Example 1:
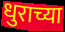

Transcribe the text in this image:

धुराच्या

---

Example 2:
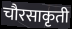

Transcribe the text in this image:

चौरसाकृती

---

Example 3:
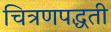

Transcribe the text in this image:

चित्रणपद्धती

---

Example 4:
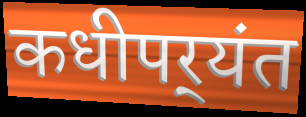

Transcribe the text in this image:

कधीपर्यंत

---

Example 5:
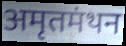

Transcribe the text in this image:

अमृतमंथन